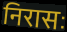
निरासः